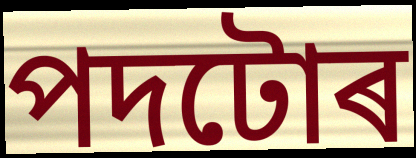
পদটোৰ